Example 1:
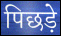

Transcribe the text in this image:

पिछड़े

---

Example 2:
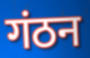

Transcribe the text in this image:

गंठन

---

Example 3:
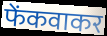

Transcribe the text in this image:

फेंकवाकर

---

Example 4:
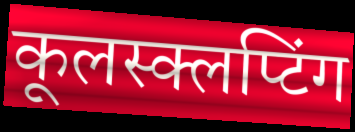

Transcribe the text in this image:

कूलस्क्लप्टिंग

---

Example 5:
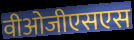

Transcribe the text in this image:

वीओजीएसएस